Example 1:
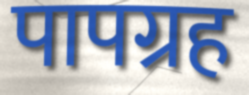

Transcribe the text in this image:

पापग्रह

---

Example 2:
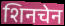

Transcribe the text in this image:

शिनचेन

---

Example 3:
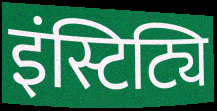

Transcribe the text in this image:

इंस्टिट्यि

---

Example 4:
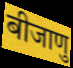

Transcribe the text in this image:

बीजाणु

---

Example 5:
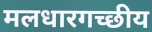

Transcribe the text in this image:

मलधारगच्छीय